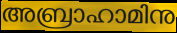
അബ്രാഹാമിനു